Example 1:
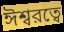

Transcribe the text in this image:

ঈশ্বরত্বে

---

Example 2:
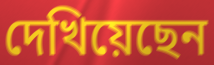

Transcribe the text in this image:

দেখিয়েছেন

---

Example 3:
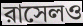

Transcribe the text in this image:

রাসেলও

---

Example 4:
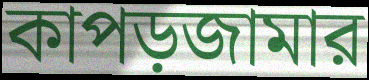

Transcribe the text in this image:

কাপড়জামার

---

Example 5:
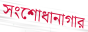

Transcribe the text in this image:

সংশোধানাগার